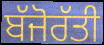
ਬੱਜੋਰੱਤੀ